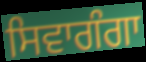
ਸਿਵਾਗੰਗਾ